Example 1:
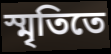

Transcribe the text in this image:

স্মৃতিতে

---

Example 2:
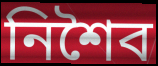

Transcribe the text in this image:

নিশৈব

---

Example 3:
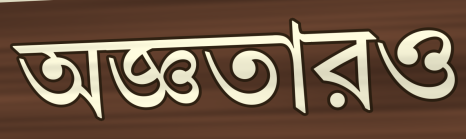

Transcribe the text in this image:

অজ্ঞতারও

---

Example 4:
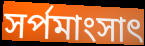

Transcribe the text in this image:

সর্পমাংসাৎ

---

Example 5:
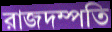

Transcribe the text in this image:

রাজদম্পতি